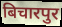
बिचारपुर